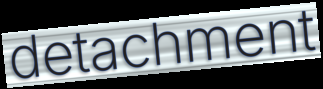
detachment